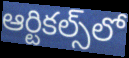
ఆర్టికల్స్‌లో